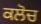
ਕਲੋਚ